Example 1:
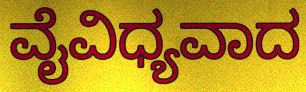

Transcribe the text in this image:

ವೈವಿಧ್ಯವಾದ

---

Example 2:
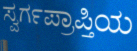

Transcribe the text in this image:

ಸ್ವರ್ಗಪ್ರಾಪ್ತಿಯ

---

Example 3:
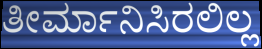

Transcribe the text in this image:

ತೀರ್ಮಾನಿಸಿರಲಿಲ್ಲ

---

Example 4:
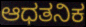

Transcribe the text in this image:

ಆಧತನಿಕ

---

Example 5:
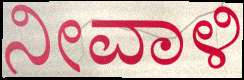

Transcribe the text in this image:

ನೀವಾಳಿ